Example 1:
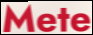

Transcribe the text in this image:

Mete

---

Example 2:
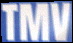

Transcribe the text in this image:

TMV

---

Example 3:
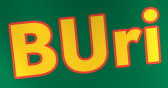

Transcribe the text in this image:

BUri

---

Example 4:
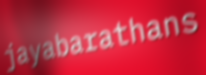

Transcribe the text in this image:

jayabarathans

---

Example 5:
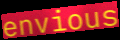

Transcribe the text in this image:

envious